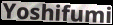
Yoshifumi